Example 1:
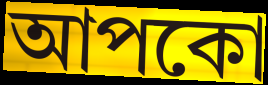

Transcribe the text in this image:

আপকো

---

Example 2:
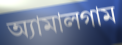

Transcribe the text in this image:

অ্যামালগাম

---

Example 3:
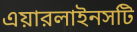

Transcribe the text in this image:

এয়ারলাইনসটি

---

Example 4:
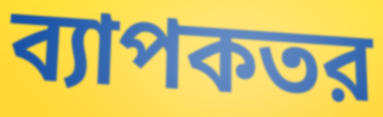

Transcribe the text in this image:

ব্যাপকতর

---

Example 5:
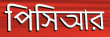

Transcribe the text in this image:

পিসিআর